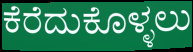
ಕೆರೆದುಕೊಳ್ಳಲು